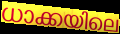
ധാക്കയിലെ